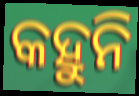
କହୁନି